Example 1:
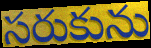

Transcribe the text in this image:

సరుకును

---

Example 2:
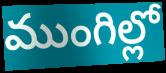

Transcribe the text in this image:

ముంగిల్లో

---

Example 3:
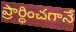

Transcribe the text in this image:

ప్రార్థించగానే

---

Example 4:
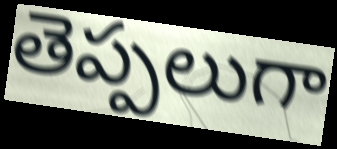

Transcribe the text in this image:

తెప్పలుగా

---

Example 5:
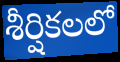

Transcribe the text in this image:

శీర్షికలలో